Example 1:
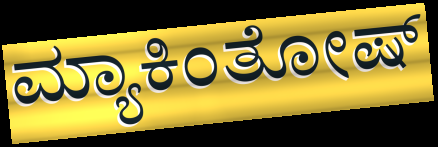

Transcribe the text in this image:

ಮ್ಯಾಕಿಂತೋಷ್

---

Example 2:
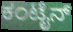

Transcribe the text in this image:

ಕಂಟೈನ್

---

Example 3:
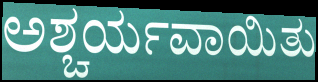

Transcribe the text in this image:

ಅಶ್ಚರ್ಯವಾಯಿತು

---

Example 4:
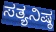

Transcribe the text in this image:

ಸತ್ಯನಿಷ್ಠ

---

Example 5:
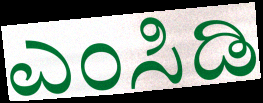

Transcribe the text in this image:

ಎಂಸಿಡಿ